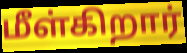
மீள்கிறார்